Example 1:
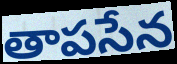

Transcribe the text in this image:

తాపసేన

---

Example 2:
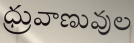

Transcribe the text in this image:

ధ్రువాణువుల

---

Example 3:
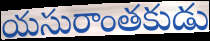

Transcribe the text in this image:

యసురాంతకుడు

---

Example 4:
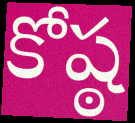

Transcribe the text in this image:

కోష్ఠ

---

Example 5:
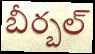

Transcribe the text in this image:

బీర్బల్